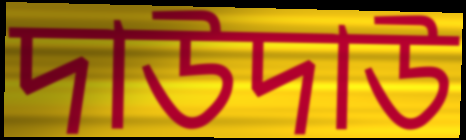
দাউদাউ